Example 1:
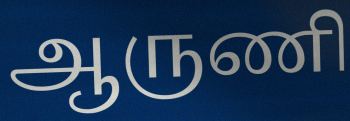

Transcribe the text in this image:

ஆருணி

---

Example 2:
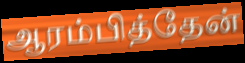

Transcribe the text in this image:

ஆரம்பித்தேன்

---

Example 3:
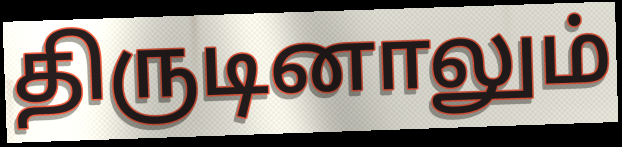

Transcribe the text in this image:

திருடினாலும்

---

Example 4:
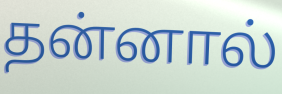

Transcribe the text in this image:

தன்னால்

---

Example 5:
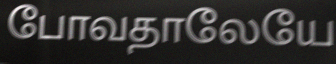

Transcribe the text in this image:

போவதாலேயே